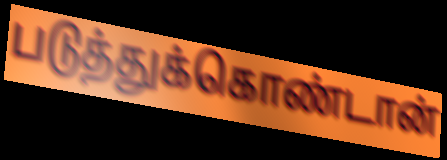
படுத்துக்கொண்டான்